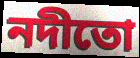
নদীতো